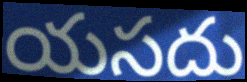
యసదు